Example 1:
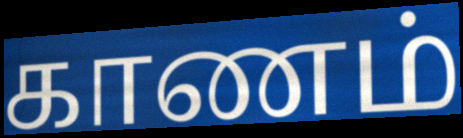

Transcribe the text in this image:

காணம்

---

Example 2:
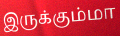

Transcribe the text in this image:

இருக்கும்மா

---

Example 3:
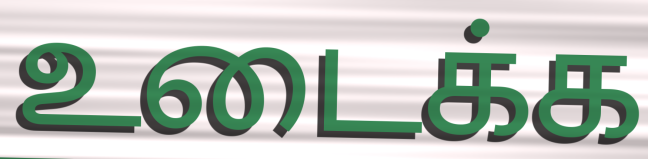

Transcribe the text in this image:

உடைக்க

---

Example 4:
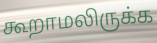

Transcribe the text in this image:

கூறாமலிருக்க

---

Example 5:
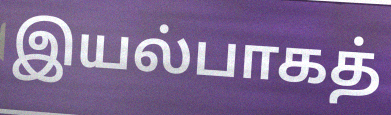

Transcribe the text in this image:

இயல்பாகத்